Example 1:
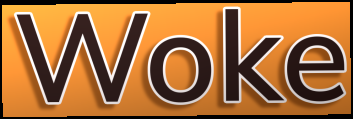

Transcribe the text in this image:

Woke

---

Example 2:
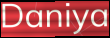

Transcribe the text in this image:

Daniya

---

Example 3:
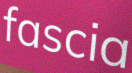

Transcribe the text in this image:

fascia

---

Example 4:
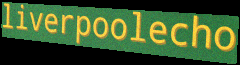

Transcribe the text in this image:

liverpoolecho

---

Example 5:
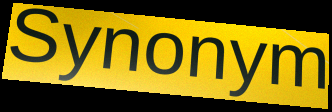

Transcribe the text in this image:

Synonym